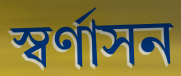
স্বর্ণাসন